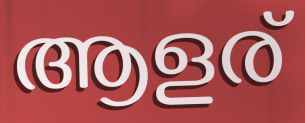
ആളര്